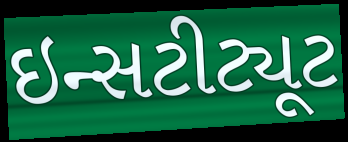
ઇન્સટીટ્યૂટ